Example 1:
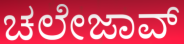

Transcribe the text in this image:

ಚಲೇಜಾವ್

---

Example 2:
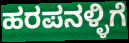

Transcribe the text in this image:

ಹರಪನಳ್ಳಿಗೆ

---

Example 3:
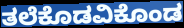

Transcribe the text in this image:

ತಲೆಕೊಡವಿಕೊಂಡ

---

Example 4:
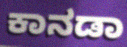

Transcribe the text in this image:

ಕಾನಡಾ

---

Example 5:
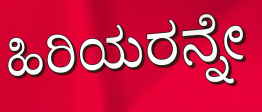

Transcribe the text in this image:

ಹಿರಿಯರನ್ನೇ